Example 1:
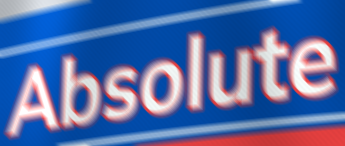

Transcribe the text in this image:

Absolute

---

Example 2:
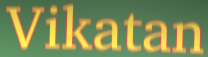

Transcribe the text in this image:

Vikatan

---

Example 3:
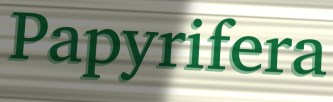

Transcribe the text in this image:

Papyrifera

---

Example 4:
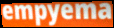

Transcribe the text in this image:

empyema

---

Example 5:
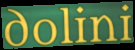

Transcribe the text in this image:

dolini